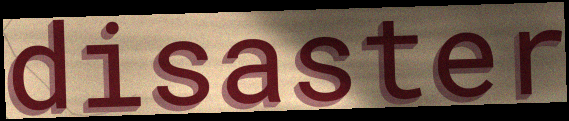
disaster